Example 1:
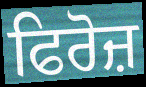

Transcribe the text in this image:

ਫਿਰੋਜ਼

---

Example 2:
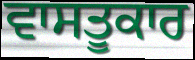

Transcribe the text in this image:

ਵਾਸਤੂਕਾਰ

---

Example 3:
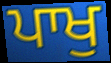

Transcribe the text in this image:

ਪਾਖੁ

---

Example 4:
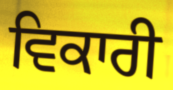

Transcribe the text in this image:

ਵਿਕਾਰੀ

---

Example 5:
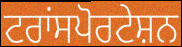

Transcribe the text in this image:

ਟਰਾਂਸਪੋਰਟੇਸ਼ਨ